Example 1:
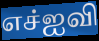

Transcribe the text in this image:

எச்ஐவி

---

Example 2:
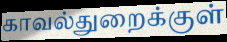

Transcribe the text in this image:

காவல்துறைக்குள்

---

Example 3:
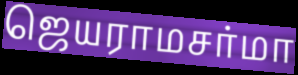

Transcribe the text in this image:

ஜெயராமசர்மா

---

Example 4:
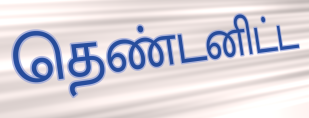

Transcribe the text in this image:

தெண்டனிட்ட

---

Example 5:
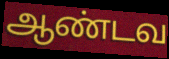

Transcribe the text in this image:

ஆண்டவ